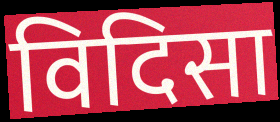
विदिसा